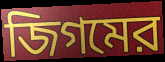
জিগমের